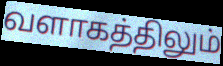
வளாகத்திலும்